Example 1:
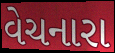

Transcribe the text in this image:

વેચનારા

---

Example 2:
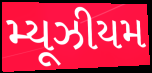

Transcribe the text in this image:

મ્યૂઝીયમ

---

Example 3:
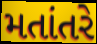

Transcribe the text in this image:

મતાંતરે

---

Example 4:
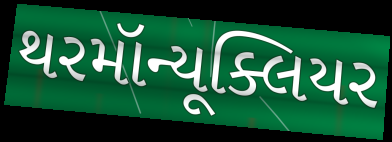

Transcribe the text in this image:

થરમૉન્યૂક્લિયર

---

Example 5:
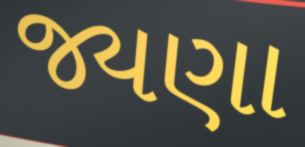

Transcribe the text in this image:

જ્યણા